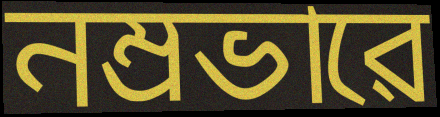
নম্ৰভাৱে